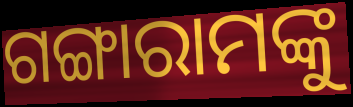
ଗଙ୍ଗାରାମଙ୍କୁ